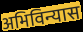
अभिविन्यास